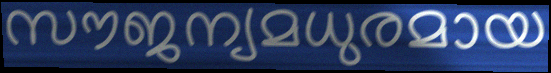
സൗജന്യമധുരമായ